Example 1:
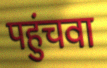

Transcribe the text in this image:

पहुंचवा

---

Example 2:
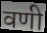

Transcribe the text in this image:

वणी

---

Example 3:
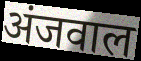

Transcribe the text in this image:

अंजवाल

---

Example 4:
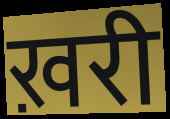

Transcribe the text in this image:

ख़री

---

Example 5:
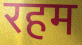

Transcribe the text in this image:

रहम